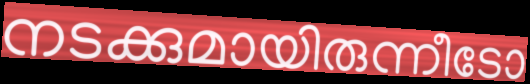
നടക്കുമായിരുന്നീടോ